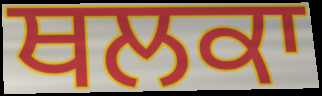
ਥਲਕਾ